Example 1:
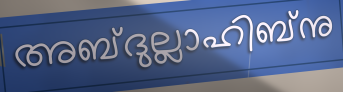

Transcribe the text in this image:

അബ്ദുല്ലാഹിബ്നു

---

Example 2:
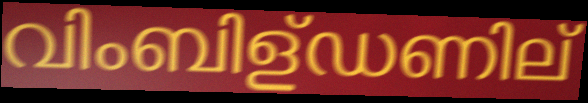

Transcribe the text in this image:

വിംബിള്ഡണില്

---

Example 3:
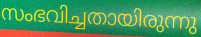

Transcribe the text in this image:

സംഭവിച്ചതായിരുന്നു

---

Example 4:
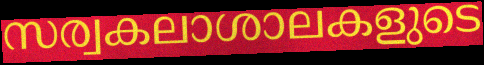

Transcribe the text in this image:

സര്വകലാശാലകളുടെ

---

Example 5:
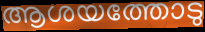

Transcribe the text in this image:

ആശയത്തോടു